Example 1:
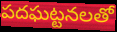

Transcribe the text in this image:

పదఘట్టనలతో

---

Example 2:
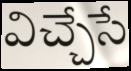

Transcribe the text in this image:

విచ్చేసే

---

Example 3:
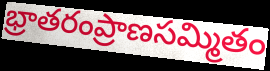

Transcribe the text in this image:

భ్రాతరంప్రాణసమ్మితం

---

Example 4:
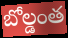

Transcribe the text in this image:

బోల్డంత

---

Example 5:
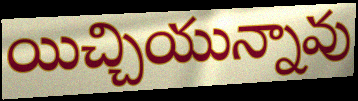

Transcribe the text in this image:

యిచ్చియున్నావు